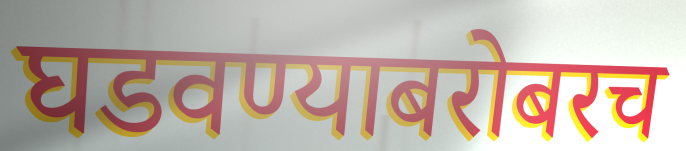
घडवण्याबरोबरच